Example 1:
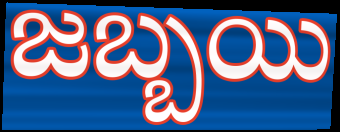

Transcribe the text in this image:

జబ్బయి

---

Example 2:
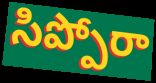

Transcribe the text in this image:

సిప్పోరా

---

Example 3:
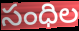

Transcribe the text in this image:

సంధిల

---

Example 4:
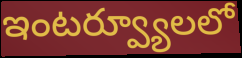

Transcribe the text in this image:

ఇంటర్వ్యూలలో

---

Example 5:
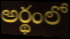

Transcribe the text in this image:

అర్థంలో